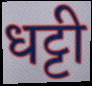
धट्टी